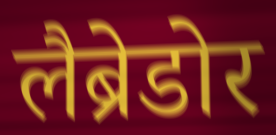
लैब्रेडोर